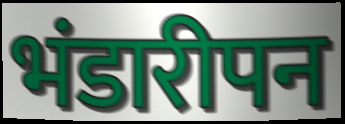
भंडारीपन